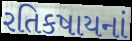
રતિકષાયનાં